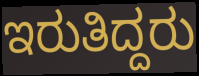
ಇರುತಿದ್ದರು